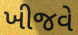
ખીજવે